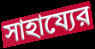
সাহায্যের